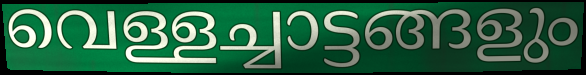
വെള്ളച്ചാട്ടങ്ങളും